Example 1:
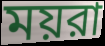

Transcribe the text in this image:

ময়রা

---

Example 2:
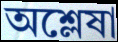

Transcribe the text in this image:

অশ্লেষা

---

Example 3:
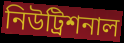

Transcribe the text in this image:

নিউট্রিশনাল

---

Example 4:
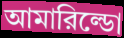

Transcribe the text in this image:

আমারিল্ডো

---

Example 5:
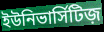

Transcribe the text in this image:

ইউনিভার্সিটিজ়